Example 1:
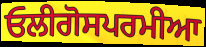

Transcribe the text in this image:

ਓਲੀਗੋਸਪਰਮੀਆ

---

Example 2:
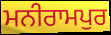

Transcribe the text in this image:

ਮਨੀਰਾਮਪੁਰ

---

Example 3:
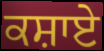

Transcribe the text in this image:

ਕਸ਼ਾਏ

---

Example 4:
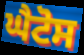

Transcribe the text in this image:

ਘੈਟੋਸ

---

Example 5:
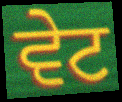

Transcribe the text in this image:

ਵੇਟ